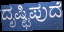
ದೃಷ್ಟಿಪುದೆ